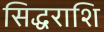
सिद्धराशि